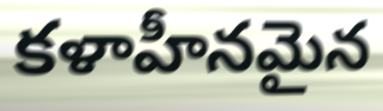
కళాహీనమైన